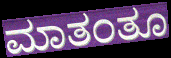
ಮಾತಂತೂ